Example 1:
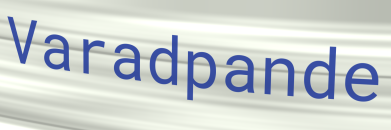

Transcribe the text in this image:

Varadpande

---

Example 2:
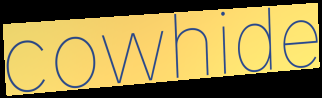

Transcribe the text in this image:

cowhide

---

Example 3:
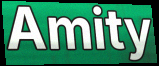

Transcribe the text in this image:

Amity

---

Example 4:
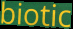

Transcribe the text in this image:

biotic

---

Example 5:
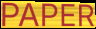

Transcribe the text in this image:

PAPER